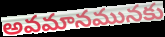
అవమానమునకు